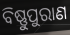
ବିଷ୍ଣୁପୁରାଣ